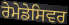
ਰੇਮੇਡੇਸਿਵਰ